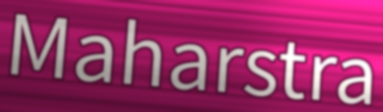
Maharstra